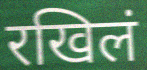
रखिलं